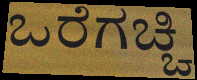
ಒರೆಗಚ್ಚಿ